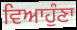
ਵਿਆਹੁੰਣਾ